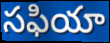
సఫియా